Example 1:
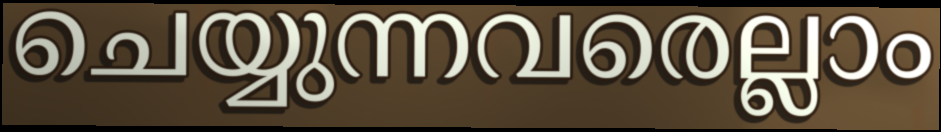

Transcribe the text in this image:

ചെയ്യുന്നവരെല്ലാം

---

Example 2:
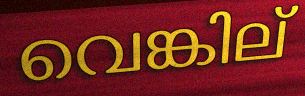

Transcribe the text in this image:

വെങ്കില്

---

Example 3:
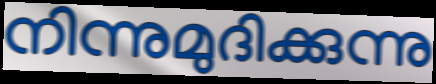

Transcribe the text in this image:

നിന്നുമുദിക്കുന്നു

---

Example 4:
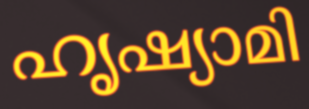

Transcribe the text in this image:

ഹൃഷ്യാമി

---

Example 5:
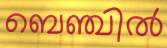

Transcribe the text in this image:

ബെഞ്ചിൽ